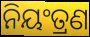
ନିୟଂତ୍ରଣ